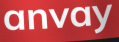
anvay